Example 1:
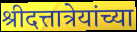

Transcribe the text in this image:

श्रीदत्तात्रेयांच्या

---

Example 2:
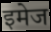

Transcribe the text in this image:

इमेज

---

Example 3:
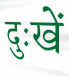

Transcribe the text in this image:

दुःखें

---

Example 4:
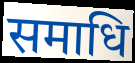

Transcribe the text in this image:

समाधि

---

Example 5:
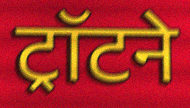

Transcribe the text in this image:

ट्रॉटने